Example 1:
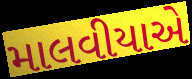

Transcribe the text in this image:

માલવીયાએ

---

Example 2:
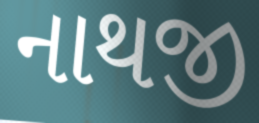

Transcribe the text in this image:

નાથજી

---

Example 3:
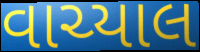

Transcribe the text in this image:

વાચ્યાલ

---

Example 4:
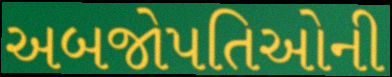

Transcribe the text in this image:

અબજોપતિઓની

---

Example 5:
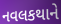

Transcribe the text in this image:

નવલકથાને